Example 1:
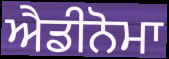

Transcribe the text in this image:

ਐਡੀਨੋਮਾ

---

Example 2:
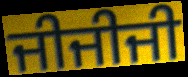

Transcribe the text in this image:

ਜੀਜੀਜੀ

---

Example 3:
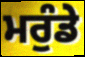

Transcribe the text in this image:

ਮਰੁੰਡੇ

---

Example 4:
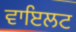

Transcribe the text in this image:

ਵਾਇਲਟ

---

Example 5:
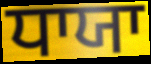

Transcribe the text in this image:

ਧਾਯਾ